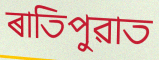
ৰাতিপুৱাত